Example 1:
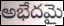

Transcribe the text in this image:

అభేదమై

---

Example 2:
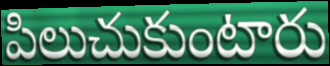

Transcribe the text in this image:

పిలుచుకుంటారు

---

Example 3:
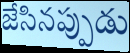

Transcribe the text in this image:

జేసినప్పుడు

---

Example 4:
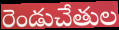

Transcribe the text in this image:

రెండుచేతుల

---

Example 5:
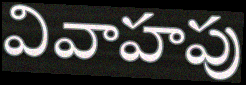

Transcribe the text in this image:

వివాహపు